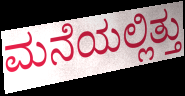
ಮನೆಯಲ್ಲಿತ್ತು